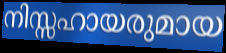
നിസ്സഹായരുമായ